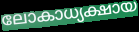
ലോകാധ്യക്ഷായ